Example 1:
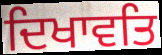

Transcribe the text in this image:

ਦਿਖਾਵਤਿ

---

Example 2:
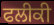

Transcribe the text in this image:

ਫਲੀਕੀ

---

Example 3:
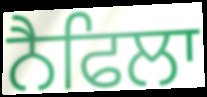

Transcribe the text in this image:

ਨੈਫਿਲਾ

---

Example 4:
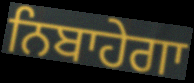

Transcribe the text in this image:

ਨਿਬਾਹੇਗਾ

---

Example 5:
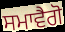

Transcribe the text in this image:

ਸਮਾਵੈਗੋ